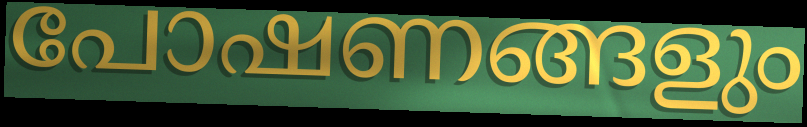
പോഷണങ്ങളും